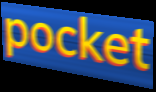
pocket